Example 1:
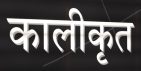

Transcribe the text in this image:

कालीकृत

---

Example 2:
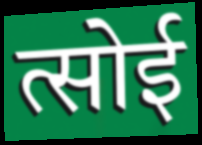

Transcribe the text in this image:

त्सोई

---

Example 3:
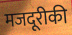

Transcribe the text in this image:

मजदूरीकी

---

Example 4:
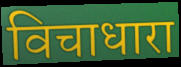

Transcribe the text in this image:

विचाधारा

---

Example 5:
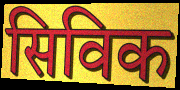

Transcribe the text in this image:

सिविक